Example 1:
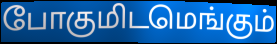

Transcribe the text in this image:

போகுமிடமெங்கும்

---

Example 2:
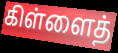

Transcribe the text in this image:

கிள்ளைத்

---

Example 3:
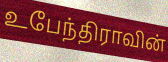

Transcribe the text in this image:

உபேந்திராவின்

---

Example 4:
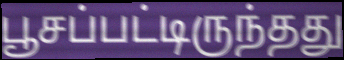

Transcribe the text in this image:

பூசப்பட்டிருந்தது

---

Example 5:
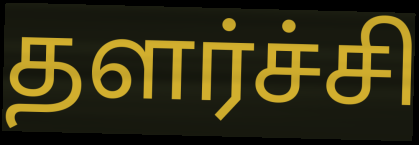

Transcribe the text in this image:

தளர்ச்சி